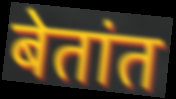
बेतांत